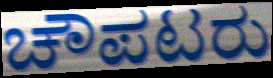
ಚೌಪಟರು